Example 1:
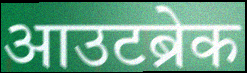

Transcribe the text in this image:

आउटब्रेक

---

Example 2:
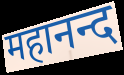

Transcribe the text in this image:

महानन्द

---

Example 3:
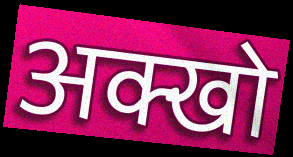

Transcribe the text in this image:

अक्खो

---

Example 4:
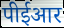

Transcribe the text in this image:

पीईआर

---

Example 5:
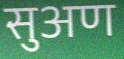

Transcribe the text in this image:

सुअण